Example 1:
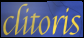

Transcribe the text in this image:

clitoris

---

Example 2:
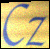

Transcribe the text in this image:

Cz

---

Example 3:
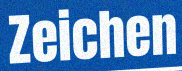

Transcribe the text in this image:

Zeichen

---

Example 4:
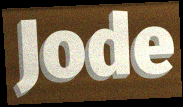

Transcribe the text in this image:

Jode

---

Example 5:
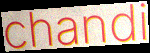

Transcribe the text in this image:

chandi